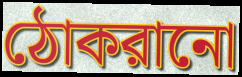
ঠোকরানো